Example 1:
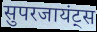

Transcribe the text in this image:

सुपरजायंट्स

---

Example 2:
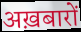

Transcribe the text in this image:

अख़बारों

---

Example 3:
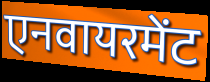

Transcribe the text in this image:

एनवायरमेंट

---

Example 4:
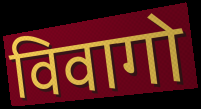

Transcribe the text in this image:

विवागो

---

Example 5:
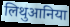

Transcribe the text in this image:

लिथुआनिया